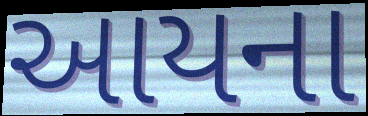
આયના